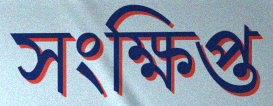
সংক্ষিপ্ত